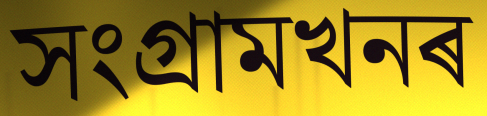
সংগ্ৰামখনৰ